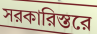
সরকারিস্তরে